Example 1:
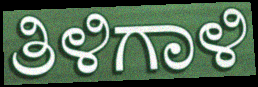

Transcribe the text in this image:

ತಿಳಿಗಾಳಿ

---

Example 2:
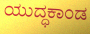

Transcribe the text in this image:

ಯುದ್ಧಕಾಂಡ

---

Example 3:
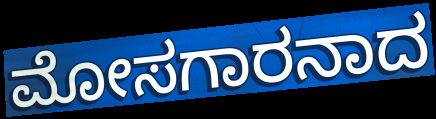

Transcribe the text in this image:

ಮೋಸಗಾರನಾದ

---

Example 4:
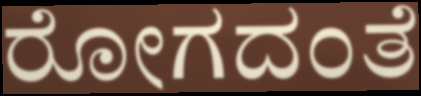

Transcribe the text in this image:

ರೋಗದಂತೆ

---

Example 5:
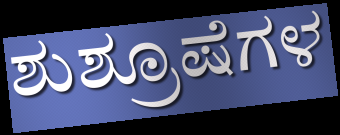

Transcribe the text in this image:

ಶುಶ್ರೂಷೆಗಳ